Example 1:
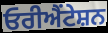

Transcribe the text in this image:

ਓਰੀਐਂਟੇਸ਼ਨ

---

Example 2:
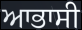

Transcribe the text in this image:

ਆਭਾਸੀ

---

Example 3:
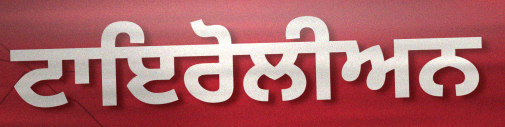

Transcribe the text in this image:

ਟਾਇਰੋਲੀਅਨ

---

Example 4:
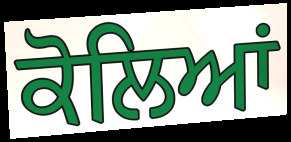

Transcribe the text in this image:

ਕੋਲਿਆਂ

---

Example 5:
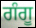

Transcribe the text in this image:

ਗੰਗੂ